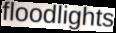
floodlights